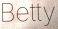
Betty